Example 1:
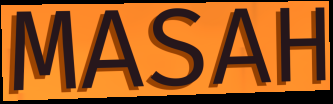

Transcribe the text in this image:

MASAH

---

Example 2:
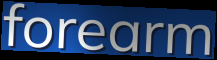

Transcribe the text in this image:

forearm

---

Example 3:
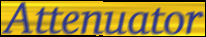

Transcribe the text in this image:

Attenuator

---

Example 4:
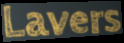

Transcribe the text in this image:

Lavers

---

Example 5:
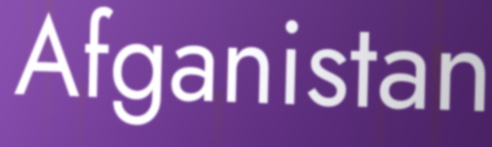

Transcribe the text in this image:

Afganistan